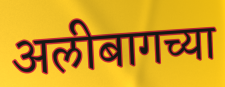
अलीबागच्या